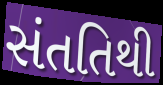
સંતતિથી